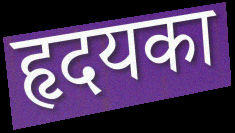
हृदयका